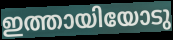
ഇത്തായിയോടു